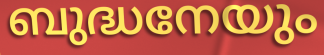
ബുദ്ധനേയും